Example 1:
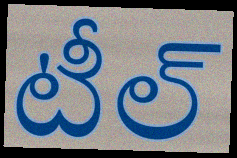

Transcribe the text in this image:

టీల్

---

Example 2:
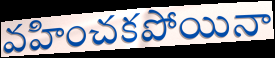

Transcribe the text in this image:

వహించకపోయినా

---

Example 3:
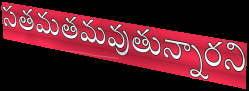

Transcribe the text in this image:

సతమతమవుతున్నారని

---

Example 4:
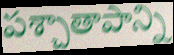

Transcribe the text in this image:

పశ్చాతాపాన్ని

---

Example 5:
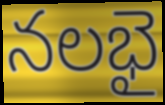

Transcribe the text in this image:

నలభై